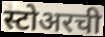
स्टोअरची